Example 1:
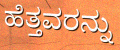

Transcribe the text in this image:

ಹೆತ್ತವರನ್ನು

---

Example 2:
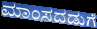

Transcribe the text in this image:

ಮಾಂಸದಡುಗೆ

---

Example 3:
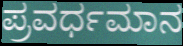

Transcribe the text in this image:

ಪ್ರವರ್ಧಮಾನ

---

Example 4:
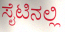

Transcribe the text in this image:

ಸೈಟಿನಲ್ಲಿ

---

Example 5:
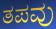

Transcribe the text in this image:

ತಪವು